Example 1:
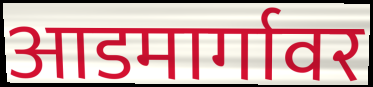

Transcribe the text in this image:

आडमार्गावर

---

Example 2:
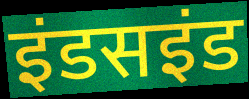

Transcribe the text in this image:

इंडसइंड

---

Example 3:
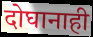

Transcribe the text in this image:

दोघानाही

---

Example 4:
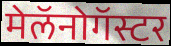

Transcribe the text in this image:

मेलॅनोगॅस्टर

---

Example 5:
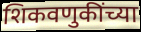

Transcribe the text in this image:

शिकवणुकींच्या